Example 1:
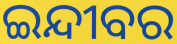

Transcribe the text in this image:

ଇନ୍ଦୀବର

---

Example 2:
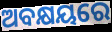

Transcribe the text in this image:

ଅବକ୍ଷୟରେ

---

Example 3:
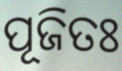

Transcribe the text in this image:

ପୂଜିତଃ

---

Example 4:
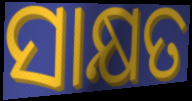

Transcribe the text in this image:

ସାକ୍ଷତ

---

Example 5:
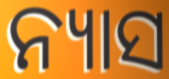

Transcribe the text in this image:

ନ୍ୟାସ